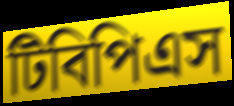
টিবিপিএস